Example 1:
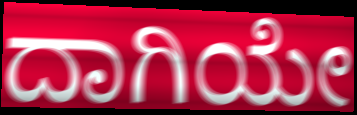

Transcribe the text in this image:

ದಾಗಿಯೇ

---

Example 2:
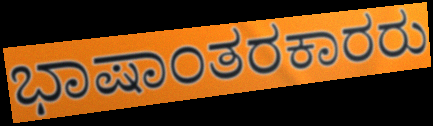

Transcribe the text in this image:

ಭಾಷಾಂತರಕಾರರು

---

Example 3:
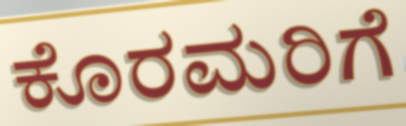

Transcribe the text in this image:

ಕೊರಮರಿಗೆ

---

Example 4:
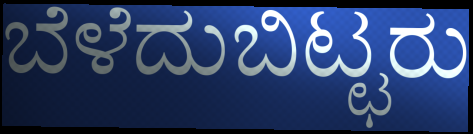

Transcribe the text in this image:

ಬೆಳೆದುಬಿಟ್ಟರು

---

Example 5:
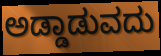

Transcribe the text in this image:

ಅಡ್ಡಾಡುವದು